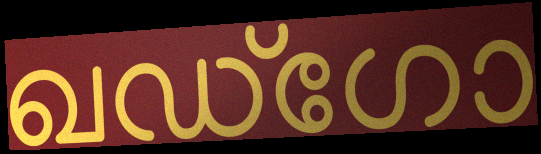
ഖഡ്ഗോ